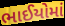
ભાઈયોમાં